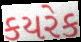
કયરેક